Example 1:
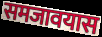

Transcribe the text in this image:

समजावयास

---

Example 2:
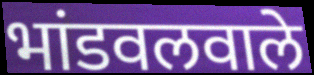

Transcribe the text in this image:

भांडवलवाले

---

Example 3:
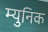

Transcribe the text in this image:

म्युनिक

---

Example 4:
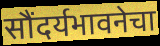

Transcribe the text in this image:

सौंदर्यभावनेचा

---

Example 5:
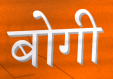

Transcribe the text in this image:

बोगी